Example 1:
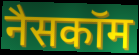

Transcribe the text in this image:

नैसकॉम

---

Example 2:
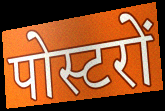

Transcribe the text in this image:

पोस्टरों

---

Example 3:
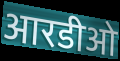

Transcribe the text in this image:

आरडीओ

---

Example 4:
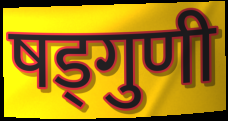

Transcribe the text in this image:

षड्गुणी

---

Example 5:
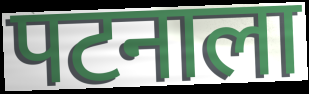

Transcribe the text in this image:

पटनाला